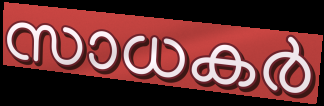
സാധകർ